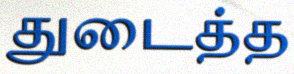
துடைத்த